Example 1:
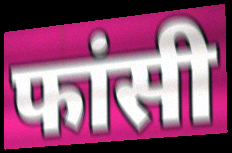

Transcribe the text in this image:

फांसी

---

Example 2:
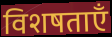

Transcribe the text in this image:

विशषताएँ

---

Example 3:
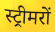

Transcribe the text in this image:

स्ट्रीमरों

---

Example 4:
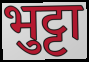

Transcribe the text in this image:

भुट्टा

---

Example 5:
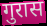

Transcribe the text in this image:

गुरास